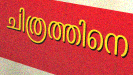
ചിത്രത്തിനെ